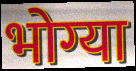
भोग्या